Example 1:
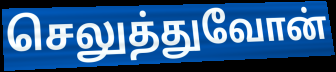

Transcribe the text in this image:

செலுத்துவோன்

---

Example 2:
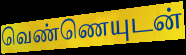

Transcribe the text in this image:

வெண்ணெயுடன்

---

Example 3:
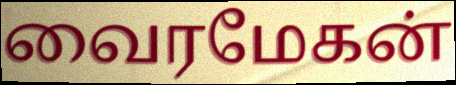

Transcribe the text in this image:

வைரமேகன்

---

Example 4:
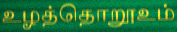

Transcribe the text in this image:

உழத்தொறூஉம்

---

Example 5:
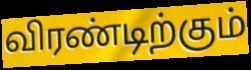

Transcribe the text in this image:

விரண்டிற்கும்